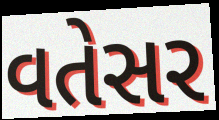
વતેસર